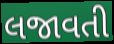
લજાવતી